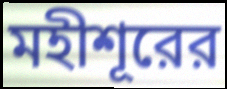
মহীশূরের